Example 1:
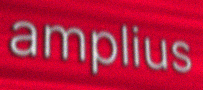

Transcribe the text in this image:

amplius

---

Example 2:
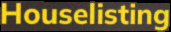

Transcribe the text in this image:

Houselisting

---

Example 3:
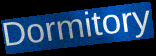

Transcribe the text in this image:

Dormitory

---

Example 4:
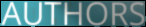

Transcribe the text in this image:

AUTHORS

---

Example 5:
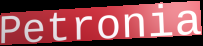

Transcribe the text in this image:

Petronia